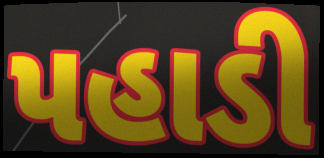
પહાડી